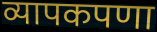
व्यापकपणा